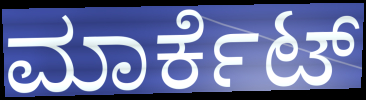
ಮಾರ್ಕೆಟ್